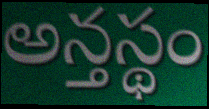
అన్తస్థం